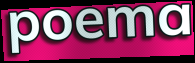
poema